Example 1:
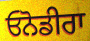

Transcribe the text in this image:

ਓਨੋਡੀਰਾ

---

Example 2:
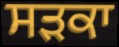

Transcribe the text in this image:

ਸੜਕਾ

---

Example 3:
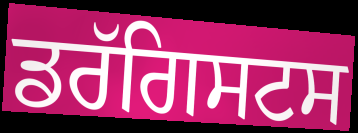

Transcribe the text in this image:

ਡਰੱਗਿਸਟਸ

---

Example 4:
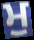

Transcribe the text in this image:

ਮੁ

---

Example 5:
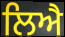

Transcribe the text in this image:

ਲਿਐ